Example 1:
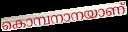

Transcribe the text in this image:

കൊമ്പനാനയാണ്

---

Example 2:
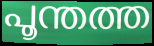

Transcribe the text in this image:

പൂന്തത്ത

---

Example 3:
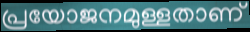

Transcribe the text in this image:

പ്രയോജനമുള്ളതാണ്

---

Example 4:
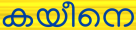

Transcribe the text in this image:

കയീനെ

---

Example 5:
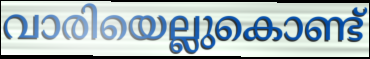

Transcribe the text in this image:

വാരിയെല്ലുകൊണ്ട്